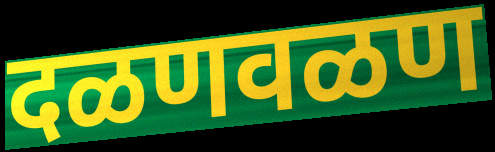
दळणवळण